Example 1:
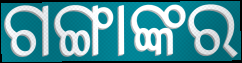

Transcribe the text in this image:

ଗଙ୍ଗାଙ୍କର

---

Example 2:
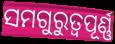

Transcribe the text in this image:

ସମଗୁରୁତ୍ଵପୂର୍ଣ୍ଣ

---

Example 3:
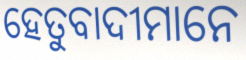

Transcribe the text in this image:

ହେତୁବାଦୀମାନେ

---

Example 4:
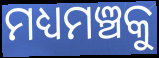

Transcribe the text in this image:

ମଧ୍ୟମଞ୍ଚକୁ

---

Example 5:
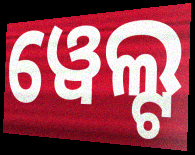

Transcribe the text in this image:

ୱେଲ୍ଟ